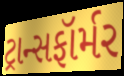
ટ્રાન્સફૉર્મર